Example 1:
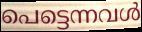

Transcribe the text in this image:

പെട്ടെന്നവൾ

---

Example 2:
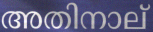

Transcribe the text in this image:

അതിനാല്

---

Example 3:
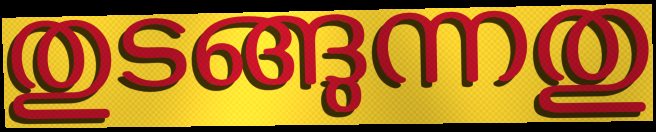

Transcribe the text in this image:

തുടങ്ങുന്നതു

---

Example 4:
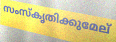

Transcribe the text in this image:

സംസ്കൃതിക്കുമേല്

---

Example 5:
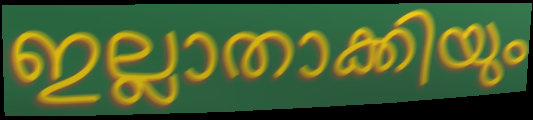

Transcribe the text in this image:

ഇല്ലാതാക്കിയും